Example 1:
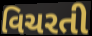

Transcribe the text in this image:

વિચરતી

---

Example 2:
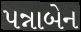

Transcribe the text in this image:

પન્નાબેન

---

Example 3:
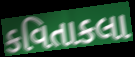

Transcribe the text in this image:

કવિતાકલા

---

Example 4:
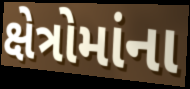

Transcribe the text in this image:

ક્ષેત્રોમાંના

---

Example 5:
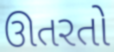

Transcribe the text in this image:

ઊતરતો